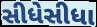
સીધેસીધા